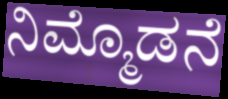
ನಿಮ್ಮೊಡನೆ